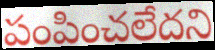
పంపించలేదని